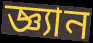
জ্ঞ্যান